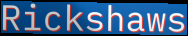
Rickshaws